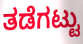
ತಡೆಗಟ್ಟು